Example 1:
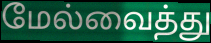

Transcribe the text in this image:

மேல்வைத்து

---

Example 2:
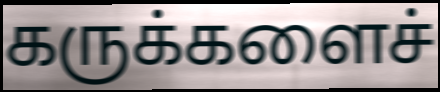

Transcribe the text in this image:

கருக்களைச்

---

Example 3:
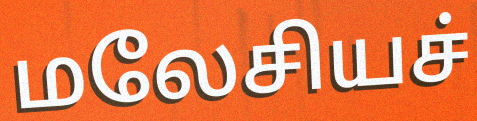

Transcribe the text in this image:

மலேசியச்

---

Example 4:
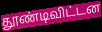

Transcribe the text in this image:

தூண்டிவிட்டன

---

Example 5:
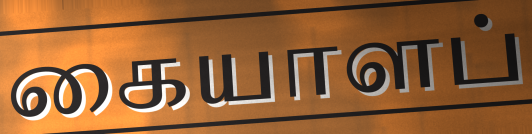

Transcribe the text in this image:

கையாளப்